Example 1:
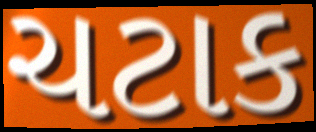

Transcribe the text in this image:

ચટાક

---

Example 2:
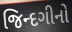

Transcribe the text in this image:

જિન્દગીનો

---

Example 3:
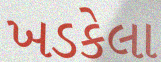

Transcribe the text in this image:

ખડકેલા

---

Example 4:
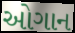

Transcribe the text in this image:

ઓગાન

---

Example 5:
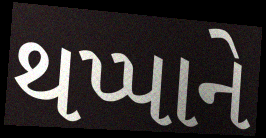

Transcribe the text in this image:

થપ્પાને